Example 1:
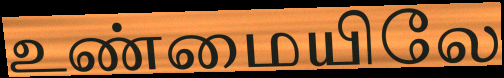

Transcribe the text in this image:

உண்மையிலே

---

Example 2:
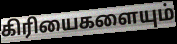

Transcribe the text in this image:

கிரியைகளையும்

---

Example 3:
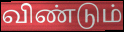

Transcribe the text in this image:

விண்டும்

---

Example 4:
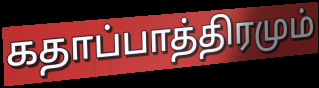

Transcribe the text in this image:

கதாப்பாத்திரமும்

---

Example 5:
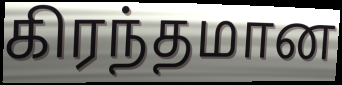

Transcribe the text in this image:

கிரந்தமான